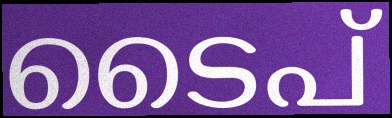
ടൈപ്